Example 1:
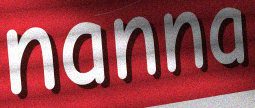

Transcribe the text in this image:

nanna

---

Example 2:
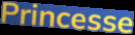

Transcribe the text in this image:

Princesse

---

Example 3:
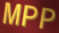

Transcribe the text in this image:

MPP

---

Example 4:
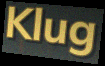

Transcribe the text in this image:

Klug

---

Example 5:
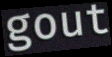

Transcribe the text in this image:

gout